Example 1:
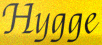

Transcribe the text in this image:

Hygge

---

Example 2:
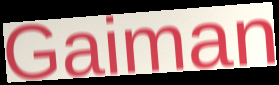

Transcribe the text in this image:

Gaiman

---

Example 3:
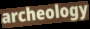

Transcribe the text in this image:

archeology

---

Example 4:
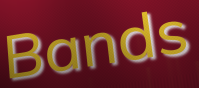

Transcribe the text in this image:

Bands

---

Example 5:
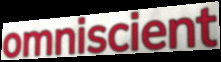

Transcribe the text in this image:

omniscient